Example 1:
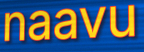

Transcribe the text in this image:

naavu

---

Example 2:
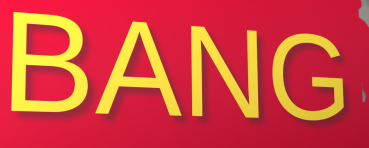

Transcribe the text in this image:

BANG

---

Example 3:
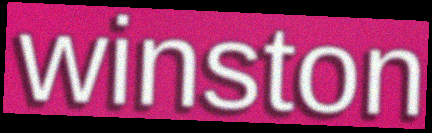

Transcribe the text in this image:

winston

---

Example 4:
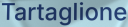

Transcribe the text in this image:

Tartaglione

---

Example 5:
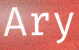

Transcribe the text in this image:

Ary